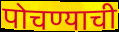
पोचण्याची